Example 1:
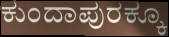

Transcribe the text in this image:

ಕುಂದಾಪುರಕ್ಕೂ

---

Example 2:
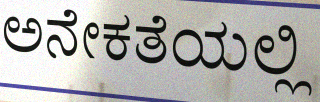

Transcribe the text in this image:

ಅನೇಕತೆಯಲ್ಲಿ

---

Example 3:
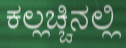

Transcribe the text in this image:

ಕಲ್ಲಚ್ಚಿನಲ್ಲಿ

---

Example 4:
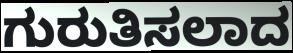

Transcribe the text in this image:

ಗುರುತಿಸಲಾದ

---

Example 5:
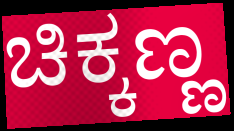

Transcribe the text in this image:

ಚಿಕ್ಕಣ್ಣ